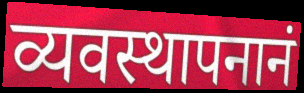
व्यवस्थापनानं